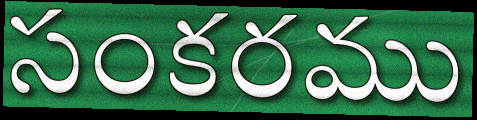
సంకరము